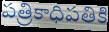
పత్రికాధిపతికి